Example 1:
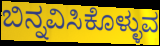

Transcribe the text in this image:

ಬಿನ್ನವಿಸಿಕೊಳ್ಳುವ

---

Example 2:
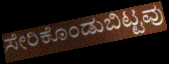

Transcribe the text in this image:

ಸೇರಿಕೊಂಡುಬಿಟ್ಟವು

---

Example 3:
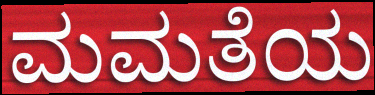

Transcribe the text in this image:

ಮಮತೆಯ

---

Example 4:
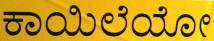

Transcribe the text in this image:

ಕಾಯಿಲೆಯೋ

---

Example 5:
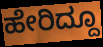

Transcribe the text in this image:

ಹೇರಿದ್ದೂ